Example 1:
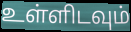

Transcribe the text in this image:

உள்ளிடவும்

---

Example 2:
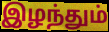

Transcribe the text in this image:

இழந்தும்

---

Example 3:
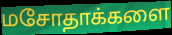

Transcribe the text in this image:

மசோதாக்களை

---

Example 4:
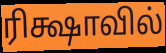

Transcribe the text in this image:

ரிக்ஷாவில்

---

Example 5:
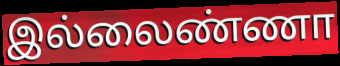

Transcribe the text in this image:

இல்லைண்ணா